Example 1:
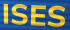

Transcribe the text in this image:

ISES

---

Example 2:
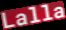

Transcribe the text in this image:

Lalla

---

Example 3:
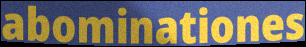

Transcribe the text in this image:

abominationes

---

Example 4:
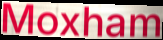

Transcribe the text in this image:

Moxham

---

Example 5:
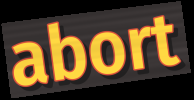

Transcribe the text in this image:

abort